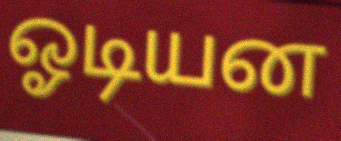
ஓடியன